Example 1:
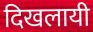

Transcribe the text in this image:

दिखलायी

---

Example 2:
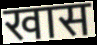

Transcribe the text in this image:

खास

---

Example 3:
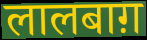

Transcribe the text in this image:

लालबाग़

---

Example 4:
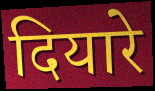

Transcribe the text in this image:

दियारे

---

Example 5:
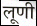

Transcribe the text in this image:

लूणी